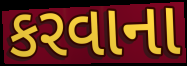
કરવાના